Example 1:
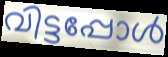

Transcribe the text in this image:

വിട്ടപ്പോൾ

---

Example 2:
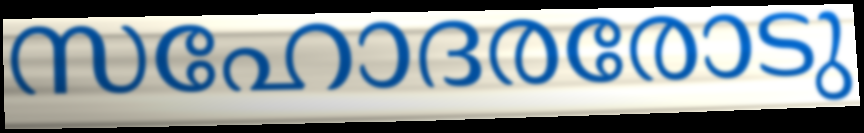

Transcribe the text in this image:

സഹോദരരോടു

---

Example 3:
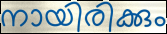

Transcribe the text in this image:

നായിരിക്കും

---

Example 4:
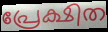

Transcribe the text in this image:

പ്രേക്ഷിത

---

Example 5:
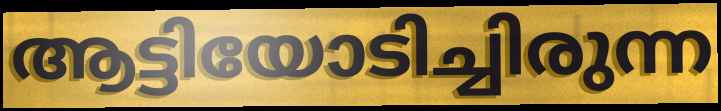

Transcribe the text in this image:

ആട്ടിയോടിച്ചിരുന്ന